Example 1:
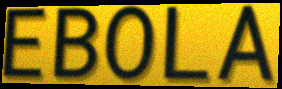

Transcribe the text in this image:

EBOLA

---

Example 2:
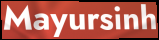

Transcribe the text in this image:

Mayursinh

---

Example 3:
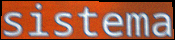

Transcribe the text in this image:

sistema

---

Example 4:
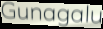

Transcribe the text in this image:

Gunagalu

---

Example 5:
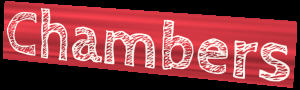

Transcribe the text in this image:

Chambers